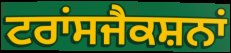
ਟਰਾਂਸਜੈਕਸ਼ਨਾਂ